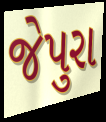
જેપુરા